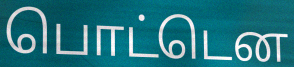
பொட்டென